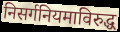
निसर्गनियमाविरुद्ध